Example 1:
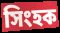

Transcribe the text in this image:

সিংহক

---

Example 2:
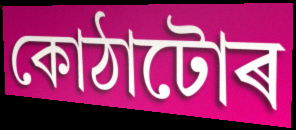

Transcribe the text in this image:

কোঠাটোৰ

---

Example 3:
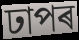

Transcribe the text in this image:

ঢাপৰ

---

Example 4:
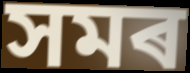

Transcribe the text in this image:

সমৰ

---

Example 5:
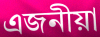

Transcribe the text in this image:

এজনীয়া